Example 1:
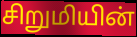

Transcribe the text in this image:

சிறுமியின்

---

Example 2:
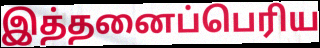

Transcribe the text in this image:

இத்தனைப்பெரிய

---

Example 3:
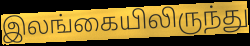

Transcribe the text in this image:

இலங்கையிலிருந்து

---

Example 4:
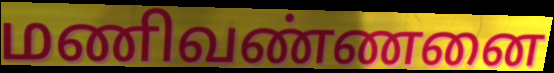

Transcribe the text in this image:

மணிவண்ணனை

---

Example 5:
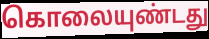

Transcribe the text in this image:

கொலையுண்டது